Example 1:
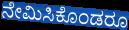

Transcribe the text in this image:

ನೇಮಿಸಿಕೊಂಡರೂ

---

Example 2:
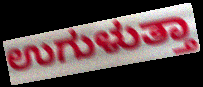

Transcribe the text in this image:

ಉಗುಳುತ್ತಾ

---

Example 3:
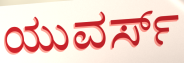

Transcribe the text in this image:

ಯುವರ್ಸ್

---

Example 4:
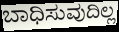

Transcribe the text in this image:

ಬಾಧಿಸುವುದಿಲ್ಲ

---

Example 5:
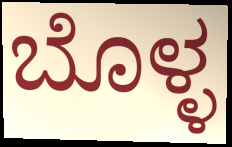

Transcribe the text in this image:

ಬೊಳ್ಳ